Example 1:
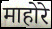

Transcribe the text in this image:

माहोरे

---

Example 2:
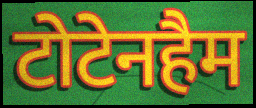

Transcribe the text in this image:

टोटेनहैम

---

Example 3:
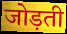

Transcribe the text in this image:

जोड़ती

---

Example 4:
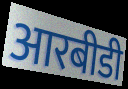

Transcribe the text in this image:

आरबीडी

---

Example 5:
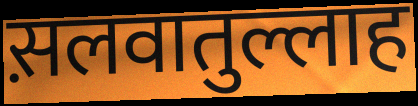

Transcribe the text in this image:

स़लवातुल्लाह